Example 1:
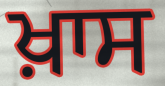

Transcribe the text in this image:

ਖ਼ਾਸ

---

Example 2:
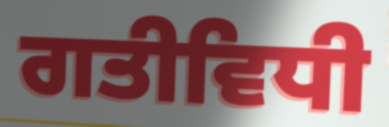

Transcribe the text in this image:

ਗਤੀਵਿਧੀ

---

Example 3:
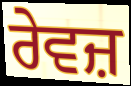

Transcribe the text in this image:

ਰੇਵਜ਼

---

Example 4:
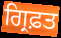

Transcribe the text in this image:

ਗ੍ਰਿਫ਼ਤ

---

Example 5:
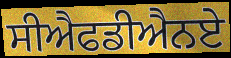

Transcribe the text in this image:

ਸੀਐਫਡੀਐਨਏ